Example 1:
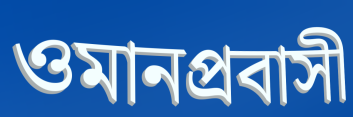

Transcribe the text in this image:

ওমানপ্রবাসী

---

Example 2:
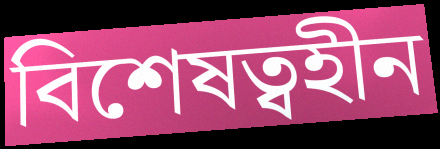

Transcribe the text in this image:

বিশেষত্বহীন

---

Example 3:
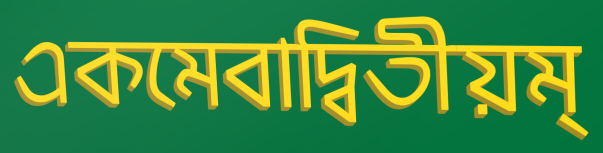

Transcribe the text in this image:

একমেবাদ্বিতীয়ম্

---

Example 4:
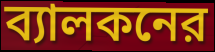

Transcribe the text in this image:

ব্যালকনের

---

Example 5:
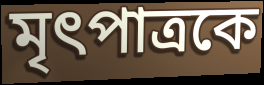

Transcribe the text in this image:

মৃৎপাত্রকে